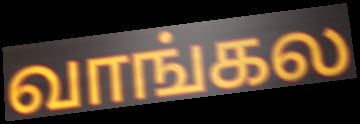
வாங்கல